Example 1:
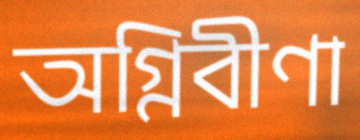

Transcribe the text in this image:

অগ্নিবীণা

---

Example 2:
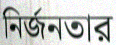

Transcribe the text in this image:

নির্জনতার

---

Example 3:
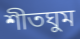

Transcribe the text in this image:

শীতঘুম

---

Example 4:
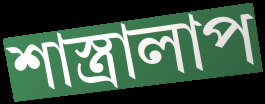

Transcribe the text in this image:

শাস্ত্রালাপ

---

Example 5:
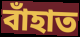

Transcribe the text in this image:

বাঁহাত